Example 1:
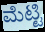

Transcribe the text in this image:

ಮೆಟ್ಟಿ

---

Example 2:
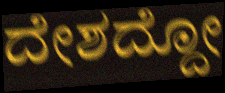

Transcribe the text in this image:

ದೇಶದ್ದೋ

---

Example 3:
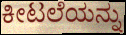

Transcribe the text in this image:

ಕೀಟಲೆಯನ್ನು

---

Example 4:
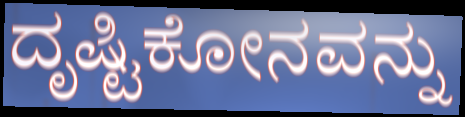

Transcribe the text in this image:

ದೃಷ್ಟಿಕೋನವನ್ನು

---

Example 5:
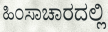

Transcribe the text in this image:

ಹಿಂಸಾಚಾರದಲ್ಲಿ